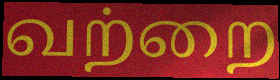
வற்றை